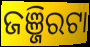
ଜଞ୍ଜିରଟା